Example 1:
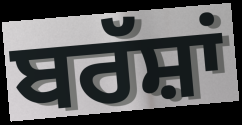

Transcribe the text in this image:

ਬਰੱਸ਼ਾਂ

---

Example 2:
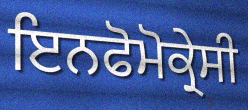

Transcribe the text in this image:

ਇਨਫੋਮੋਕ੍ਰੇਸੀ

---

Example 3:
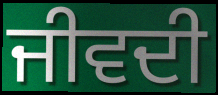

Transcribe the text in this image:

ਜੀਵਦੀ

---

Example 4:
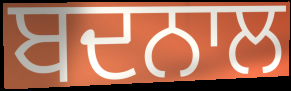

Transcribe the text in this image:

ਬਦਨਾਲ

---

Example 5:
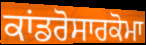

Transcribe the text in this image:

ਕਾਂਡਰੋਸਾਰਕੋਮਾ